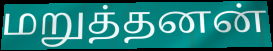
மறுத்தனன்